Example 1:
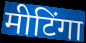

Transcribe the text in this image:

मीटिंगा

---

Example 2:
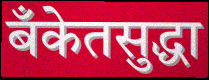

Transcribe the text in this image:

बँकेतसुद्धा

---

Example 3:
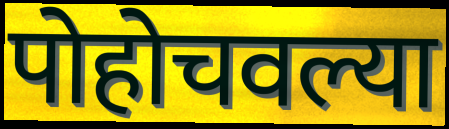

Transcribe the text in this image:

पोहोचवल्या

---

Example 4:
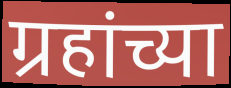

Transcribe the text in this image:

ग्रहांच्या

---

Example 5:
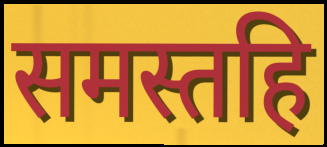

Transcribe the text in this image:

समस्तहि